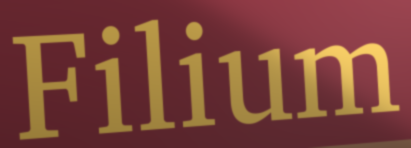
Filium